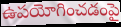
ఉపయోగించడంపై